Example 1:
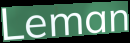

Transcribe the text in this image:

Leman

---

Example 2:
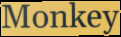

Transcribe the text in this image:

Monkey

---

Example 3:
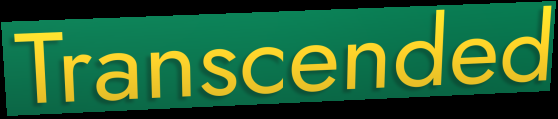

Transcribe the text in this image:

Transcended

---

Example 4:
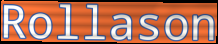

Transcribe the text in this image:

Rollason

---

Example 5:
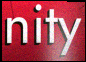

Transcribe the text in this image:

nity